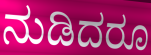
ನುಡಿದರೂ